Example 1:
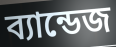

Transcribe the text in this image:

ব্যান্ডেজ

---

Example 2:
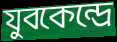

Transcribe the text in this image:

যুবকেন্দ্রে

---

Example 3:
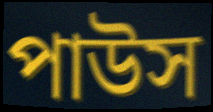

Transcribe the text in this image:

পাউস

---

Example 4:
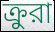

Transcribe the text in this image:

ক্রুরা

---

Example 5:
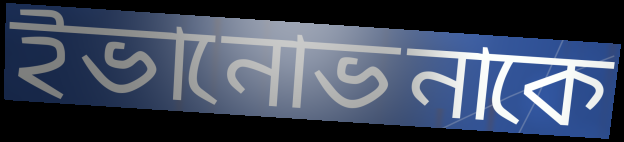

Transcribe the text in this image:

ইভানোভনাকে